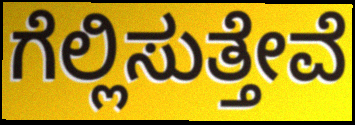
ಗೆಲ್ಲಿಸುತ್ತೇವೆ